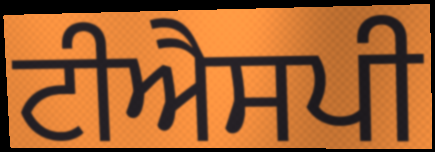
ਟੀਐਸਪੀ